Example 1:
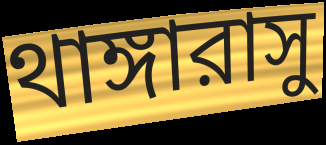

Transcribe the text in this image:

থাঙ্গারাসু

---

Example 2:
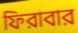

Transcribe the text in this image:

ফিরাবার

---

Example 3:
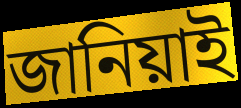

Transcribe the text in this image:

জানিয়াই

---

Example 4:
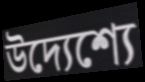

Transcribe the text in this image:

উদ্যেশ্যে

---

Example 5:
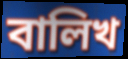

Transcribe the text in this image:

বালিখ